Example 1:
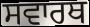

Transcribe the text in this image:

ਸਵਾਰਥ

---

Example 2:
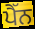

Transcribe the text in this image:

ਪੈੱਨ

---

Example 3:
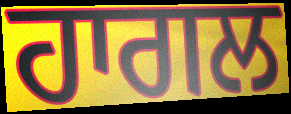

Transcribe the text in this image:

ਹਾਗਲ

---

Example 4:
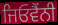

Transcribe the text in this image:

ਜਿਓਵੈਂਨੀ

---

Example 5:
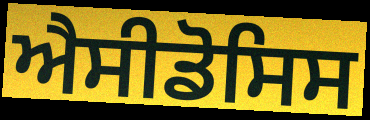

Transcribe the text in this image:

ਐਸੀਡੋਸਿਸ